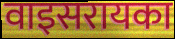
वाइसरायका